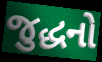
જુદ્ધનો